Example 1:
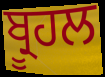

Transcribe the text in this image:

ਬ੍ਰੂਹਲ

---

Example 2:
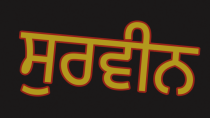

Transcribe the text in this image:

ਸੁਰਵੀਨ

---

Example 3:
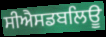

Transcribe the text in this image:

ਸੀਐਸਡਬਲਿਊ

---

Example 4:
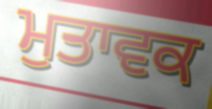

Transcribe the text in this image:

ਮੁਤਾਵਕ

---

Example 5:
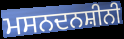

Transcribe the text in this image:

ਮਸਨਦਨਸ਼ੀਨੀ